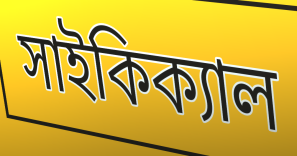
সাইকিক্যাল